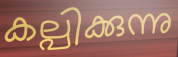
കല്പിക്കുന്നു